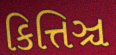
કિત્તિઞ્ચ